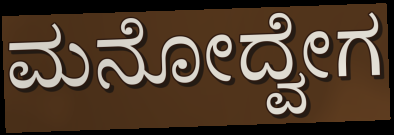
ಮನೋದ್ವೇಗ